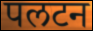
पलटन